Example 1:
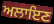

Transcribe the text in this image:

ਅਲਾਇਣ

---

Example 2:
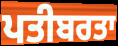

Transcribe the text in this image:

ਪਤੀਬਰਤਾ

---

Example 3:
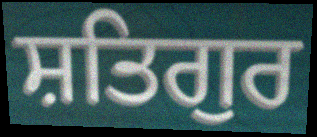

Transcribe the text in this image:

ਸ਼ਤਿਗੁਰ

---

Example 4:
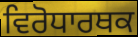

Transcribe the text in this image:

ਵਿਰੋਧਾਰਥਕ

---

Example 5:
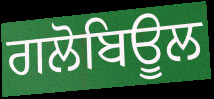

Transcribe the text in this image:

ਗਲੋਬਿਊਲ